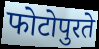
फोटोपुरते